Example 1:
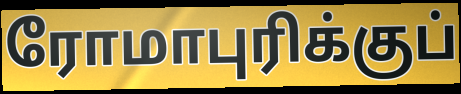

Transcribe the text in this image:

ரோமாபுரிக்குப்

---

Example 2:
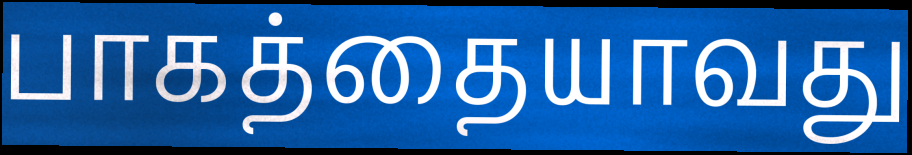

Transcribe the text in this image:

பாகத்தையாவது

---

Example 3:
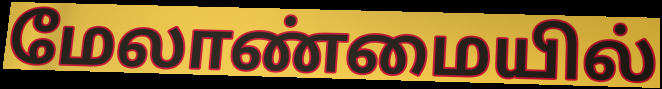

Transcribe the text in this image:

மேலாண்மையில்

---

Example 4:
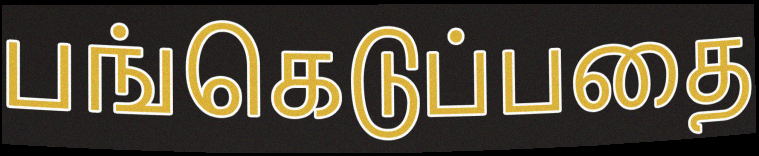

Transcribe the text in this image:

பங்கெடுப்பதை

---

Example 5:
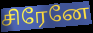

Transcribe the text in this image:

சிரேனே